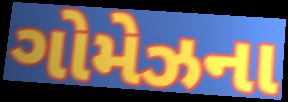
ગોમેઝના